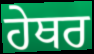
ਹੇਥਰ